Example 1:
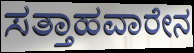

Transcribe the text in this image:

ಸತ್ತಾಹವಾರೇನ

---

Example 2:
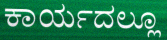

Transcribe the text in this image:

ಕಾರ್ಯದಲ್ಲೂ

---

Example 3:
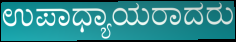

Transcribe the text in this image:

ಉಪಾಧ್ಯಾಯರಾದರು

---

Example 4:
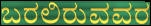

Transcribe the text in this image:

ಬರಲಿರುವವರ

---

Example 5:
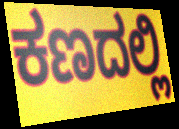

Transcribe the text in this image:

ಕಣದಲ್ಲಿ